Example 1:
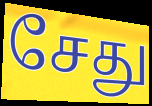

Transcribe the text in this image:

சேது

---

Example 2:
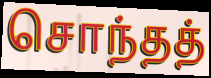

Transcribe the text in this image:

சொந்தத்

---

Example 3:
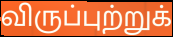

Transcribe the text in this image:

விருப்புற்றுக்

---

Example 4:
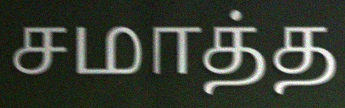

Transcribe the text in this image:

சமாத்த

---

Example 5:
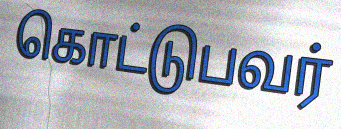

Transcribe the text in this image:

கொட்டுபவர்